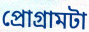
প্রোগ্রামটা